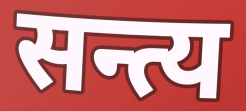
सन्त्य